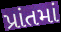
પ્રાંતમાં